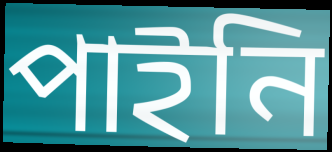
পাইনি